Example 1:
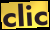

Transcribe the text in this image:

clic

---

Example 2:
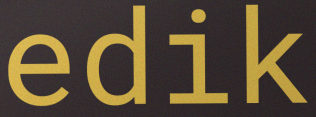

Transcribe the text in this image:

edik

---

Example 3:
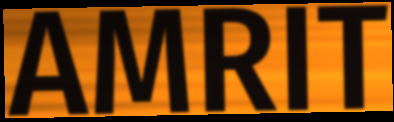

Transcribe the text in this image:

AMRIT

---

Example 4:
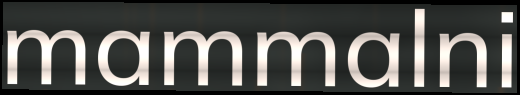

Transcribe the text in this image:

mammalni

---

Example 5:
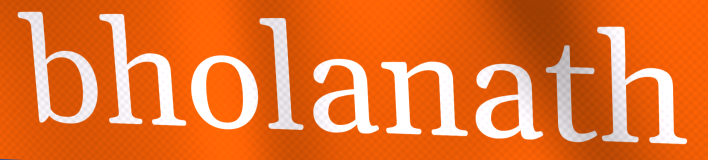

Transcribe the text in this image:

bholanath